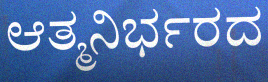
ಆತ್ಮನಿರ್ಭರದ